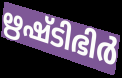
ഋഷ്ടിഭിർ